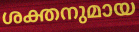
ശക്തനുമായ